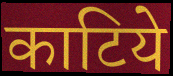
काटिये